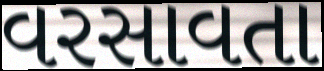
વરસાવતા